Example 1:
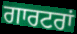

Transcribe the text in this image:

ਗਾਰਟਰਾਂ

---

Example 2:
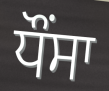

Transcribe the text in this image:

ਧੌਂਸਾ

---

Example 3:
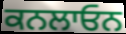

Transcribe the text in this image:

ਕਨਲਾਓਨ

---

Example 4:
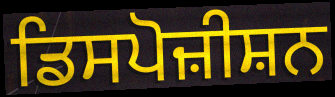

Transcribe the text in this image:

ਡਿਸਪੋਜ਼ੀਸ਼ਨ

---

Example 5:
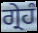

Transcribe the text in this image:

ਗ੍ਰੇਹੰ